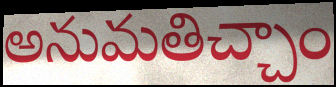
అనుమతిచ్చాం